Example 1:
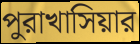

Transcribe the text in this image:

পুরাখাসিয়ার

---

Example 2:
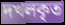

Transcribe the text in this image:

দখলকৃত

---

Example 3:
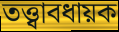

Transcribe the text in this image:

তত্ত্বাবধায়ক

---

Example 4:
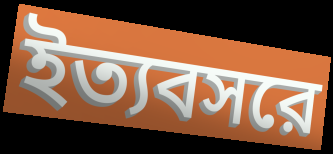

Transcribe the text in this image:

ইত্যবসরে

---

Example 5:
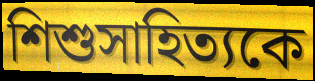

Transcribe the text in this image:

শিশুসাহিত্যকে